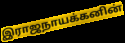
இராஜநாயக்கனின்